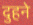
दुहने